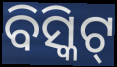
ବିସ୍କିଟ୍